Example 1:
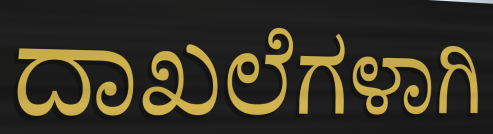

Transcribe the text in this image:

ದಾಖಲೆಗಳಾಗಿ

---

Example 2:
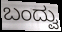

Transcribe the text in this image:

ಬಂದ್ವು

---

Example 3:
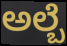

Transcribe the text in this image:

ಅಲ್ಬೆ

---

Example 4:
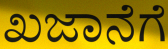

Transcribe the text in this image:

ಖಜಾನೆಗೆ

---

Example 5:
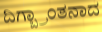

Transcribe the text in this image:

ದಿಗ್ಬ್ರಾಂತನಾದ